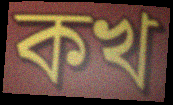
কখ